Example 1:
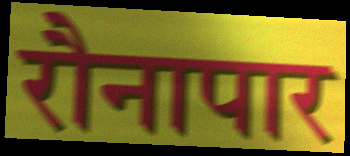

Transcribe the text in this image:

रौनापार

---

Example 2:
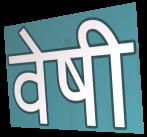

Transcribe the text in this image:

वेषी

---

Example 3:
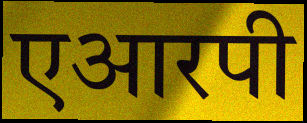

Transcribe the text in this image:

एआरपी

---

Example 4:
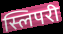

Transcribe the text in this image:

स्लिपरी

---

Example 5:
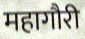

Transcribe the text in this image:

महागौरी